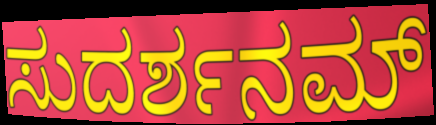
ಸುದರ್ಶನಮ್